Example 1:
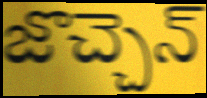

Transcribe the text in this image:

జొచ్చెన్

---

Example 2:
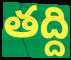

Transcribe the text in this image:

తద్ది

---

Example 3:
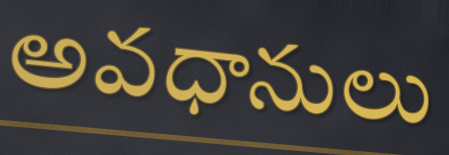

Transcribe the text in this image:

అవధానులు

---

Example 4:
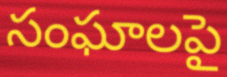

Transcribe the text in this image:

సంఘాలపై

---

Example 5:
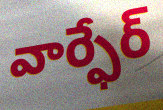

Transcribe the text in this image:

వార్ఫేర్